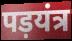
पड़यंत्र